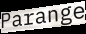
Parange